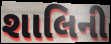
શાલિની